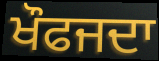
ਖੌਫਜਦਾ